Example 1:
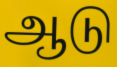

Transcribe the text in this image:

ஆடு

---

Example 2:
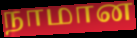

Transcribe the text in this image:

நாமான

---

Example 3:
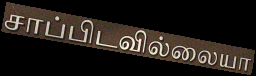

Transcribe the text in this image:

சாப்பிடவில்லையா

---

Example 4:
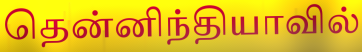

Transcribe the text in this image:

தென்னிந்தியாவில்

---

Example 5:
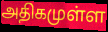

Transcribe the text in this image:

அதிகமுள்ள